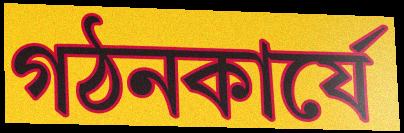
গঠনকার্যে